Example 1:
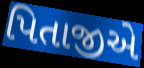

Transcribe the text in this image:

પિતાજીએ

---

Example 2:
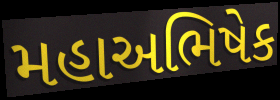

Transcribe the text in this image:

મહાઅભિષેક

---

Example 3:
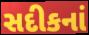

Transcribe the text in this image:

સદીકનાં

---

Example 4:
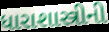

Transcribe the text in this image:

ધારાશાસ્ત્રીની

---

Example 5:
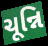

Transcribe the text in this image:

ચૂન્નિ